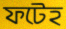
ফটেহ